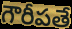
గౌరీపతే